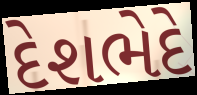
દેશભેદે